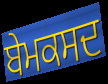
ਬੇਮਕਸਦ